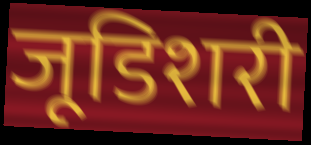
जूडिशरी